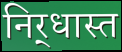
निर्धास्त